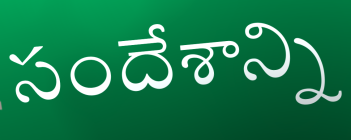
సందేశాన్ని